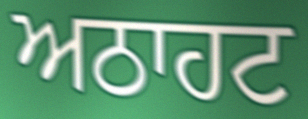
ਅਠਾਹਟ